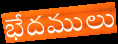
భేదములు